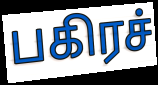
பகிரச்